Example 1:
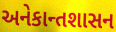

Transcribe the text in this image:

અનેકાન્તશાસન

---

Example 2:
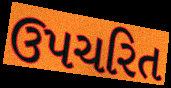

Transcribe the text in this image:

ઉપચરિત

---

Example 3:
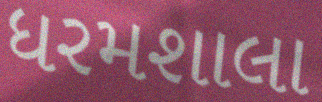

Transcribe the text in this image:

ધરમશાલા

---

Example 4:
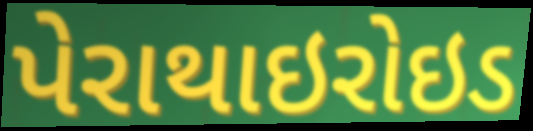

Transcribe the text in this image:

પેરાથાઇરોઇડ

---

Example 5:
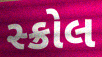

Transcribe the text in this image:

સ્ક્રોલ